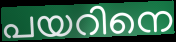
പയറിനെ